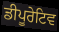
ਡੀਪੂਰੇਟਿਵ